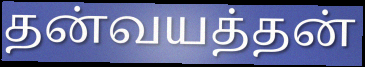
தன்வயத்தன்